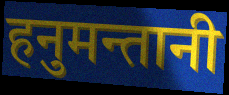
हनुमन्तानी